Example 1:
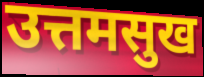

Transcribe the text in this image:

उत्तमसुख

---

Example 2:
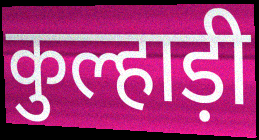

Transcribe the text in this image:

कुल्‍हाड़ी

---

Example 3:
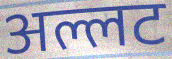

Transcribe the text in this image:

अल्लट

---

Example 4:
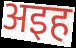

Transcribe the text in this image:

अइह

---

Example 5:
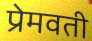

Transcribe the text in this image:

प्रेमवती